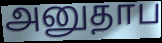
அனுதாப